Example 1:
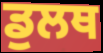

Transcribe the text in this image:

ਡੁਲਥ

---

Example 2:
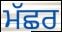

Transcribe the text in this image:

ਮੱਛਰ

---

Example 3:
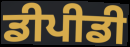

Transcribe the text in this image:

ਡੀਪੀਡੀ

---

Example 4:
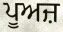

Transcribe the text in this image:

ਪੂਅਜ਼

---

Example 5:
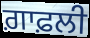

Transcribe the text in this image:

ਗ਼ਾਫ਼ਲੀ